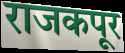
राजकपूर